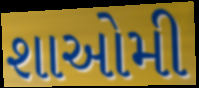
શાઓમી